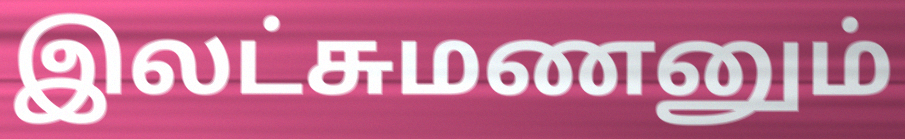
இலட்சுமணனும்